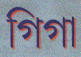
গিগা